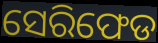
ସେରିଫେଡ